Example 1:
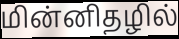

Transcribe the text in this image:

மின்னிதழில்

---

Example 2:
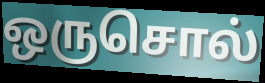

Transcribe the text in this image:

ஒருசொல்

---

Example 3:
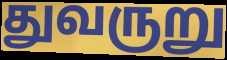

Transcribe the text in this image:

துவருறு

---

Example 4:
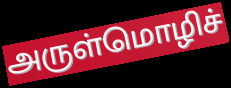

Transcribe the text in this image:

அருள்மொழிச்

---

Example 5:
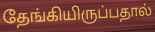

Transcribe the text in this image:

தேங்கியிருப்பதால்